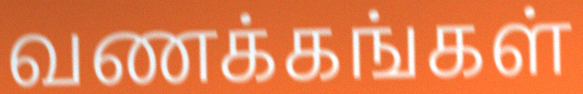
வணக்கங்கள்